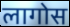
लागोस